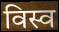
विस्व